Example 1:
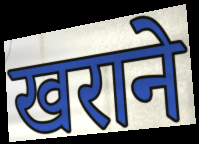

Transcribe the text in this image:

खराने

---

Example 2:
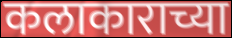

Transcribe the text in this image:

कलाकाराच्या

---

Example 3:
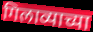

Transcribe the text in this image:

गिलाव्याच्या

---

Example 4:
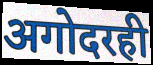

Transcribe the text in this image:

अगोदरही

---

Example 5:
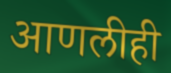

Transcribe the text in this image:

आणलीही